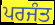
ਪਰਜੰਤ